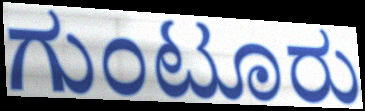
ಗುಂಟೂರು